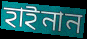
হাইনান